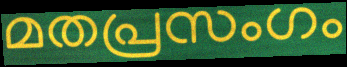
മതപ്രസംഗം